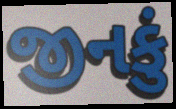
જીનકું